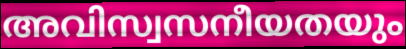
അവിസ്വസനീയതയും